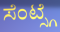
ಸೆಂಟ್ಸ್ಗೆ